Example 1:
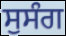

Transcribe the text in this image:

ਸੁਸੰਗ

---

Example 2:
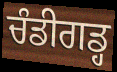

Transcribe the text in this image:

ਚੰਡੀਗਡ੍ਹ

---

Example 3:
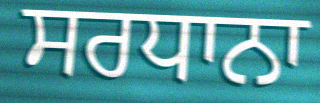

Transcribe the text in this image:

ਸਰਧਾਨਾ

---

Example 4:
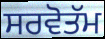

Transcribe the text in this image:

ਸਰਵੋਤੱਮ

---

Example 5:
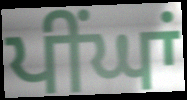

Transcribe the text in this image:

ਪੀਂਘਾਂ